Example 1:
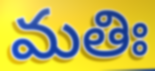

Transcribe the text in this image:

మతిః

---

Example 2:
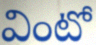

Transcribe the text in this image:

వింటో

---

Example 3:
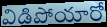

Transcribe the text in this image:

విడిపోయారో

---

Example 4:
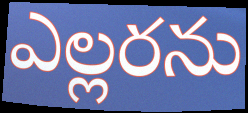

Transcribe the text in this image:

ఎల్లరను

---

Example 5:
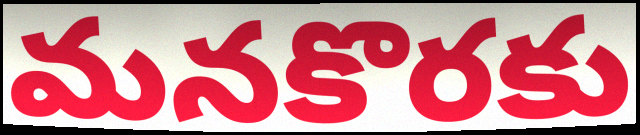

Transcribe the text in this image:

మనకొరకు